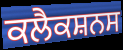
ਕਲੈਕਸ਼ਨਸ